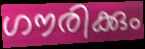
ഗൗരിക്കും